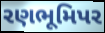
રણભૂમિપર